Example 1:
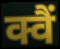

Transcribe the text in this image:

क्वैं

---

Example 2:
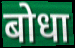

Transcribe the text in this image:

बोधा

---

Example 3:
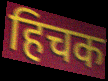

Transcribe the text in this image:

हिचक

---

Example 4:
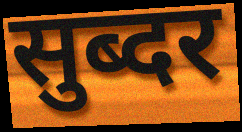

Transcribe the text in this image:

सुब्दर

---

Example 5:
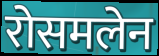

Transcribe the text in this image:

रोसमलेन